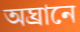
অঘ্রানে